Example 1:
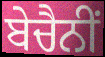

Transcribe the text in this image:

ਬੇਚੈਨੀਂ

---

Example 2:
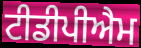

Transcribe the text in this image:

ਟੀਡੀਪੀਐਮ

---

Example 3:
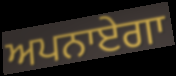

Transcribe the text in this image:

ਅਪਨਾਏਗਾ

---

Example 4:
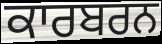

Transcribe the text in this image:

ਕਾਰਬਰਨ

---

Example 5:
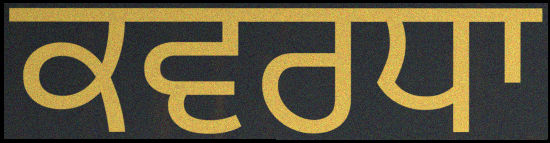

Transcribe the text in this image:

ਕਵਰਧਾ